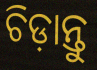
ଚିଡ଼ାନ୍ତୁ